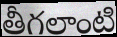
తీగలాంటి